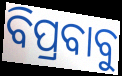
ବିପ୍ରବାବୁ